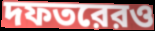
দফতরেরও